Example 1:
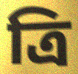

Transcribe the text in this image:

ত্ৰি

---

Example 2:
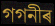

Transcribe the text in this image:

গগনীৰ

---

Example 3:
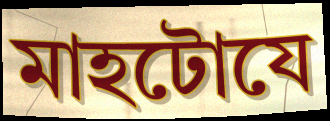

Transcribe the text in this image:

মাহটোযে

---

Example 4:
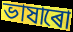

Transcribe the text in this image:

ভাষাৰো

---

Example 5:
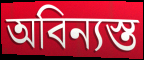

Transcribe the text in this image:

অবিন্যস্ত